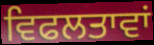
ਵਿਫਲਤਾਵਾਂ